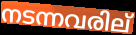
നടന്നവരില്